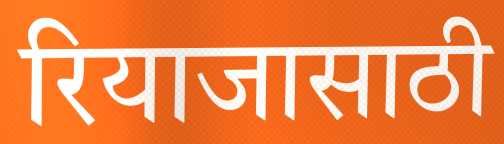
रियाजासाठी